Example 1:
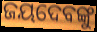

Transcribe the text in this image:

ଜୟଦେବଙ୍କୁ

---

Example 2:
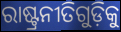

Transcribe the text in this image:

ରାଷ୍ଟ୍ରନୀତିଗୁଡ଼ିକୁ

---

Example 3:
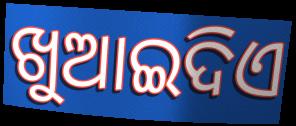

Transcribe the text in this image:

ଖୁଆଇଦିଏ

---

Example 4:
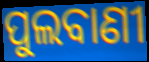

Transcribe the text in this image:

ପୁଲବାଣୀ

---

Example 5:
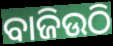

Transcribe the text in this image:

ବାଜିଉଠି